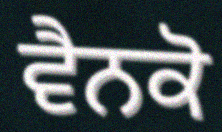
ਵੈਨਕੋ